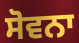
ਸੋਵਨਾ